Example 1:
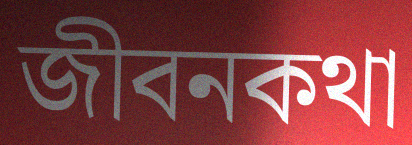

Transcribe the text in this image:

জীবনকথা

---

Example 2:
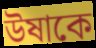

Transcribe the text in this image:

উষাকে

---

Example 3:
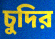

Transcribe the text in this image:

চুদির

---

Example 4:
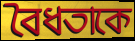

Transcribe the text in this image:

বৈধতাকে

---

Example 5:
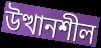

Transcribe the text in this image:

উত্থানশীল